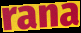
rana